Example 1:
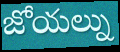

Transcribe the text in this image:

జోయల్ను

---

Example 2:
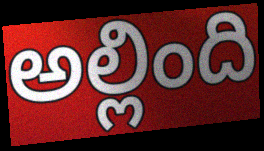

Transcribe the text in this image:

అల్లింది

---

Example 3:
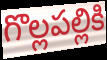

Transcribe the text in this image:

గొల్లపల్లికి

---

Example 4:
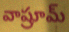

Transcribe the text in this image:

వాష్రూమ్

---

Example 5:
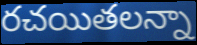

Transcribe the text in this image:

రచయితలన్నా